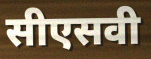
सीएसवी